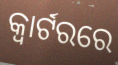
କ୍ବାର୍ଟରରେ